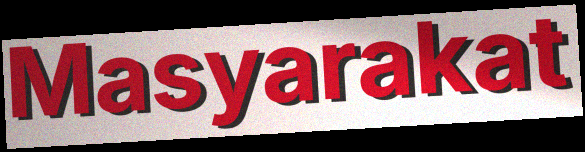
Masyarakat